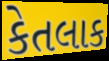
કેતલાક